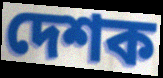
দেশক